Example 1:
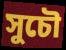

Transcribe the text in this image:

সুচৌ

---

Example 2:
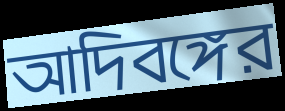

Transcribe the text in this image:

আদিবঙ্গের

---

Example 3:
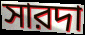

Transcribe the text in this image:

সারদা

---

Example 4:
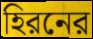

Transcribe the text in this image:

হিরনের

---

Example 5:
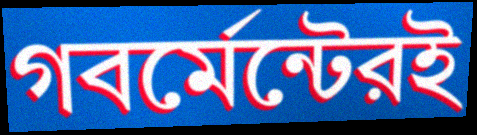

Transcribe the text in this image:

গবর্মেন্টেরই